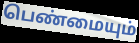
பெண்மையும்